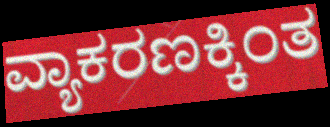
ವ್ಯಾಕರಣಕ್ಕಿಂತ